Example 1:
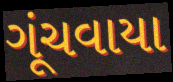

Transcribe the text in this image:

ગૂંચવાયા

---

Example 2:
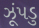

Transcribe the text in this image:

ઝૂંપડુ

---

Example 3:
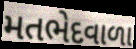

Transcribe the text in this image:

મતભેદવાળા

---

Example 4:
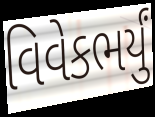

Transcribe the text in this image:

વિવેકભર્યું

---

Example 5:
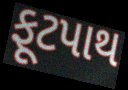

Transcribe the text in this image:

ફૂટપાથ